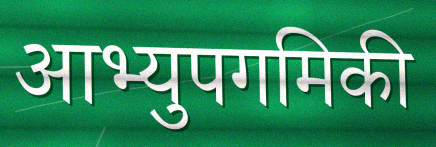
आभ्युपगमिकी